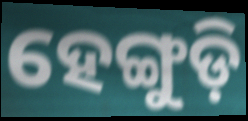
ହେଙ୍ଗୁଡ଼ି